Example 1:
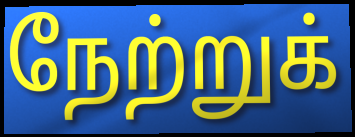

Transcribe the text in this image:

நேற்றுக்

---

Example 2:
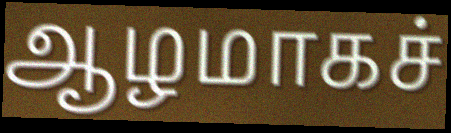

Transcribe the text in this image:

ஆழமாகச்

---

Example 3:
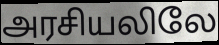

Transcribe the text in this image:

அரசியலிலே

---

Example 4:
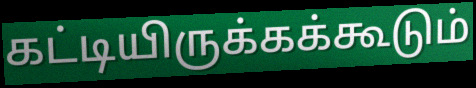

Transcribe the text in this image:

கட்டியிருக்கக்கூடும்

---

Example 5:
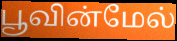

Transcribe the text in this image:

பூவின்மேல்